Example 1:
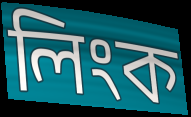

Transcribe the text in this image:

লিংক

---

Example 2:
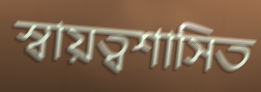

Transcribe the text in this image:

স্বায়ত্বশাসিত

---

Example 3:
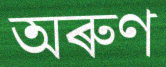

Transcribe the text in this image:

অৰুণ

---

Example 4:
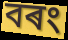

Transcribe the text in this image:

বৰং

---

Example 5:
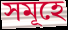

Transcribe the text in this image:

সমূহে